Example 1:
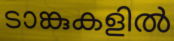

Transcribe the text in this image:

ടാങ്കുകളിൽ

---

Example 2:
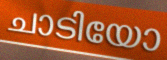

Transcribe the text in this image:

ചാടിയോ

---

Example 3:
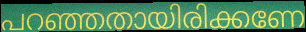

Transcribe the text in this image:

പറഞ്ഞതായിരിക്കണേ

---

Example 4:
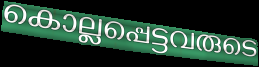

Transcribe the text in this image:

കൊല്ലപ്പെട്ടവരുടെ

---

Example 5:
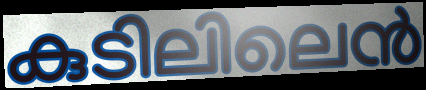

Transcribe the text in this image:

കുടിലിലെൻ